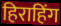
हिराहिंग